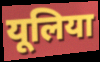
यूलिया